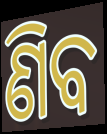
ଣିବ